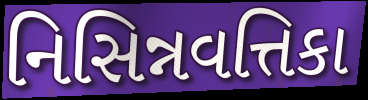
નિસિન્નવત્તિકા